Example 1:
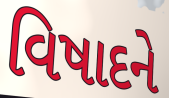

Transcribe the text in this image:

વિષાદને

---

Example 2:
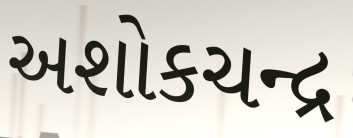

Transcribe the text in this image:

અશોકચન્દ્ર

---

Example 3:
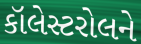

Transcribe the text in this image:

કૉલેસ્ટરોલને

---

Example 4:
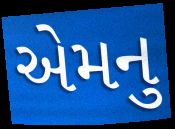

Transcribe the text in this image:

એમનુ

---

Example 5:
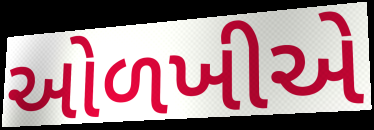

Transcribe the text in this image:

ઓળખીએ